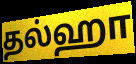
தல்ஹா